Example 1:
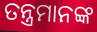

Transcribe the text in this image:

ତନ୍ତ୍ରମାନଙ୍କ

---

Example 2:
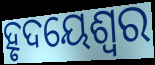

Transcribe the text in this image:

ହୃଦୟେଶ୍ୱର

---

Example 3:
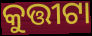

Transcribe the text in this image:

କୁତ୍ତୀଟା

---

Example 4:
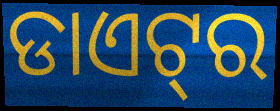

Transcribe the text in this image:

ଡାଏଟ୍‌ର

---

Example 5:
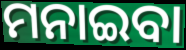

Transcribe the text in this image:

ମନାଇବା